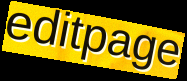
editpage